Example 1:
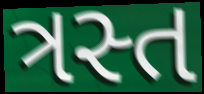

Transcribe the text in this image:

ત્રસ્ત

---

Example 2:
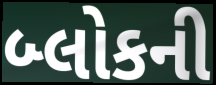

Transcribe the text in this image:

બ્લોકની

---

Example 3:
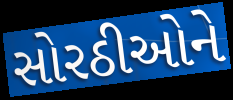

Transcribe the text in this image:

સોરઠીઓને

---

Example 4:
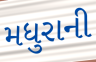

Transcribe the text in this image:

મધુરાની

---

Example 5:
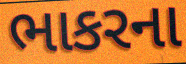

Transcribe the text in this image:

ભાકરના